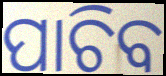
ପାଚିବ